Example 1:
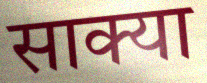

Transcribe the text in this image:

साक्या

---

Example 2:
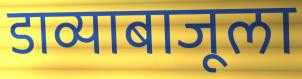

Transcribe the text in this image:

डाव्याबाजूला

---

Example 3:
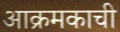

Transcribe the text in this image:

आक्रमकाची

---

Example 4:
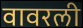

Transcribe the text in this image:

वावरली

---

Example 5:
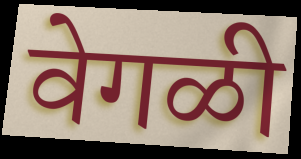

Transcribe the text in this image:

वेगळी